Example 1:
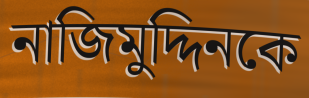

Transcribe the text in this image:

নাজিমুদ্দিনকে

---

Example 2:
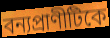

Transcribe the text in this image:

বন্যপ্রাণীটিকে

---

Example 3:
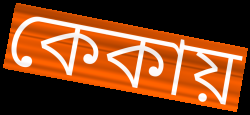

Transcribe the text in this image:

কেকায়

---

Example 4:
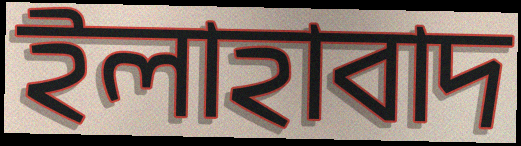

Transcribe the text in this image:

ইলাহাবাদ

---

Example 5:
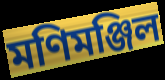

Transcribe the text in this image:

মণিমঞ্জিল